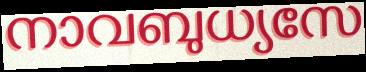
നാവബുധ്യസേ